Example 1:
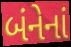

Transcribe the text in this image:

બંનેનાં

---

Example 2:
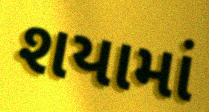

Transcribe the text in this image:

શયામાં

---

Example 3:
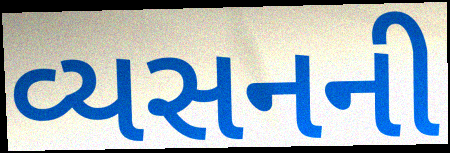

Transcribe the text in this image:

વ્યસનની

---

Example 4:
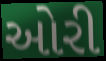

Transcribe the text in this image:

ઓરી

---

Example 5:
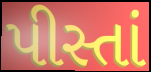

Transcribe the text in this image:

પીસ્તાં